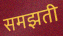
समझती